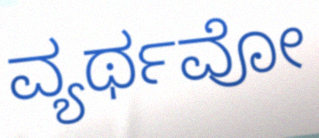
ವ್ಯರ್ಥವೋ